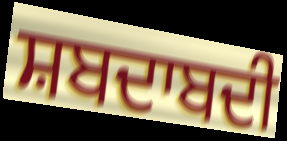
ਸ਼ਬਦਾਬਦੀ